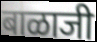
बाळाजी